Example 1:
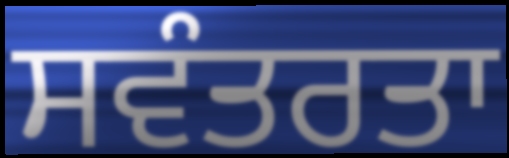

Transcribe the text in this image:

ਸਵੰਤਰਤਾ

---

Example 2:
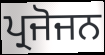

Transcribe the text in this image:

ਪ੍ਰਜੋਜਨ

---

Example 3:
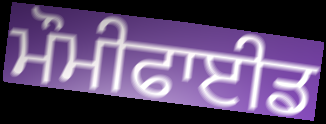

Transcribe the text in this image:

ਮੌਮੀਫਾਈਡ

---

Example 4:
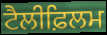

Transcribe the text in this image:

ਟੈਲੀਫ਼ਿਲਮ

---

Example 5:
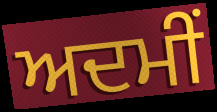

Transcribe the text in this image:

ਅਦਮੀਂ